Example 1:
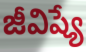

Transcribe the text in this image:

జీవిష్యే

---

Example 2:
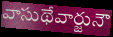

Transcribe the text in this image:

వాసుథేవార్జునౌ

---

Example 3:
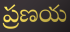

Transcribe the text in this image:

ప్రణయ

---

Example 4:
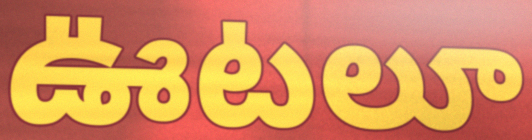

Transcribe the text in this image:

ఊటలూ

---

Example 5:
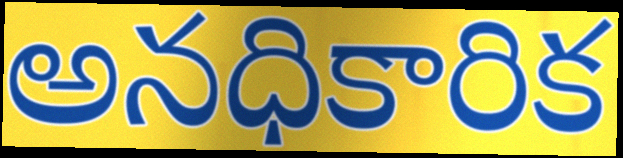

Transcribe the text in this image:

అనధికారిక